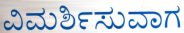
ವಿಮರ್ಶಿಸುವಾಗ